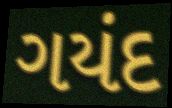
ગયંદ